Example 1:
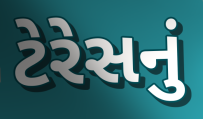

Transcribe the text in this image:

ટેરેસનું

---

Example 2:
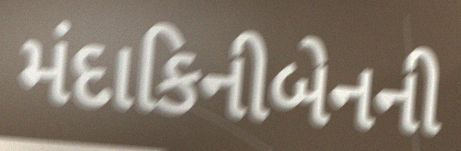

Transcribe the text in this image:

મંદાકિનીબેનની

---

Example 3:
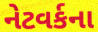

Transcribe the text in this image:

નેટવર્કના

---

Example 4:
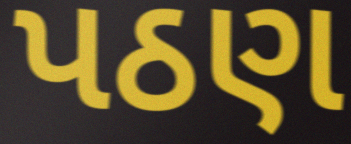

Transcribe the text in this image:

પઠણ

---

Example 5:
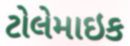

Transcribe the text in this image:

ટોલેમાઇક